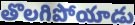
తొలగిపోయాడు